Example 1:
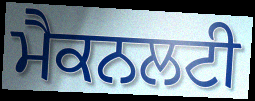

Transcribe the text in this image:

ਮੈਕਨਲਟੀ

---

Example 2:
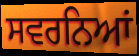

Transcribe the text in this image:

ਸਵਰਨਿਆਂ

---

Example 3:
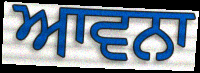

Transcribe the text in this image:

ਆਵਨਾ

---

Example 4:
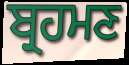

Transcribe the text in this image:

ਬ੍ਰਹਮਣ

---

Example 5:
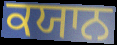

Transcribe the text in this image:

ਕਯਾਨ